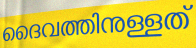
ദൈവത്തിനുള്ളത്